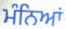
ਮੰਨਿਆਂ